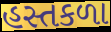
હસ્તકળા